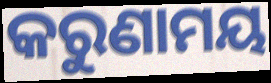
କରୁଣାମୟ